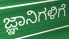
ಜ್ಞಾನಿಗಳಿಗೆ